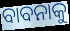
ବାବନାକୁ